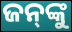
ଜନ୍‍ଙ୍କୁ